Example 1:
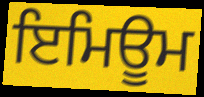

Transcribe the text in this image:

ਇਮਿਊਮ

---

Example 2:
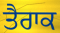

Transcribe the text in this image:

ਤੈਰਾਕ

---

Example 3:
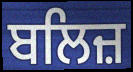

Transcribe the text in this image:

ਬਲਿਜ਼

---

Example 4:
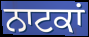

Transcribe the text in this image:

ਨਾਟਕਾਂ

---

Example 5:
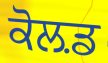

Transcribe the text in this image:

ਕੋਲ਼ਡ